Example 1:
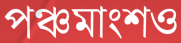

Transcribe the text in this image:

পঞ্চমাংশও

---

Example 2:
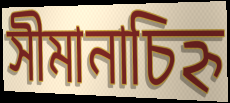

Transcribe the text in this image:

সীমানাচিহ্ন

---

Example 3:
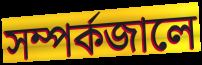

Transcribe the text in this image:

সম্পর্কজালে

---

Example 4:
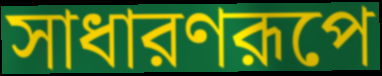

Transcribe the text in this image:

সাধারণরূপে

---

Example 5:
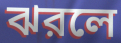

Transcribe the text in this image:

ঝরলে